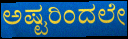
ಅಷ್ಟರಿಂದಲೇ